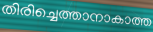
തിരിച്ചെത്താനാകാത്ത